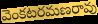
వెంకటరమణరావు